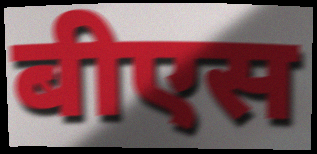
बीएस